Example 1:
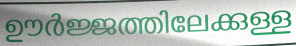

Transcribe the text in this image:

ഊർജ്ജത്തിലേക്കുള്ള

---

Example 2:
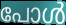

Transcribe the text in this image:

പോൾ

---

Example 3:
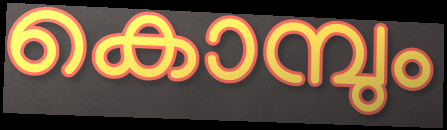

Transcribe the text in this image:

കൊമ്പും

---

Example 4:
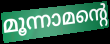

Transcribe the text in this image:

മൂന്നാമന്റെ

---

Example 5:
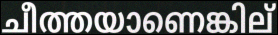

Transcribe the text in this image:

ചീത്തയാണെങ്കില്